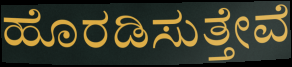
ಹೊರಡಿಸುತ್ತೇವೆ